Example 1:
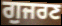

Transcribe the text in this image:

ਗੁਜਰਣ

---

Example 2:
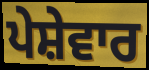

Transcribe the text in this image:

ਪੇਸ਼ੇਵਾਰ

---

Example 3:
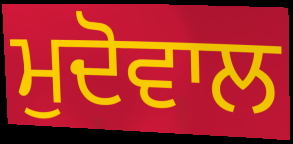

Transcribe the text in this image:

ਮੁਦੋਵਾਲ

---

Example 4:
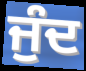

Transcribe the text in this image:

ਜੁੰਦ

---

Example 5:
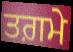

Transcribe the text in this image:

ਤਗ਼ਮੇ